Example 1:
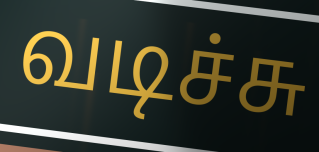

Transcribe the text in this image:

வடிச்சு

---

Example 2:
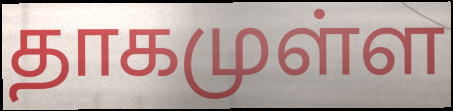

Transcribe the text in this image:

தாகமுள்ள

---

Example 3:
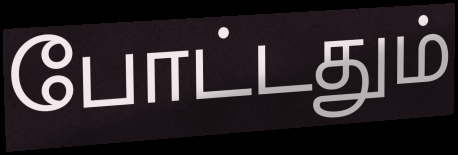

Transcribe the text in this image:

போட்டதும்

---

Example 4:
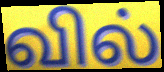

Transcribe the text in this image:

வில்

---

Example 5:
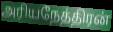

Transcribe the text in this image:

அரியநேத்திரன்